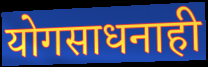
योगसाधनाही